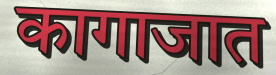
कागाजात